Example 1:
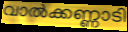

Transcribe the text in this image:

വാൽക്കണ്ണാടി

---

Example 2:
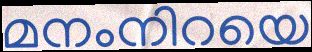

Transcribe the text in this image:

മനംനിറയെ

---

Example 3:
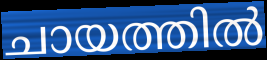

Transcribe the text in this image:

ചായത്തിൽ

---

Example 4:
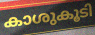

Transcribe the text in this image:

കാശുകൂടി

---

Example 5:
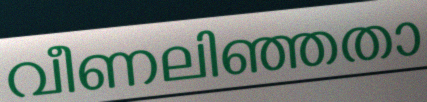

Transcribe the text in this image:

വീണലിഞ്ഞതാ